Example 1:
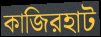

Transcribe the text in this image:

কাজিরহাট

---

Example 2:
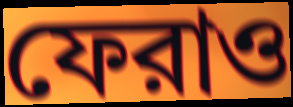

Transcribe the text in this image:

ফেরাও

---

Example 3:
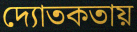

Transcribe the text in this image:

দ্যোতকতায়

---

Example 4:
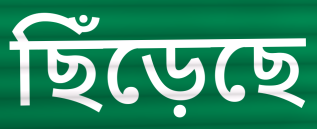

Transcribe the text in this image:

ছিঁড়েছে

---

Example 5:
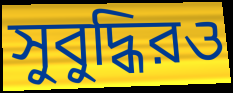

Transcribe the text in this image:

সুবুদ্ধিরও